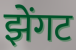
झेंगट